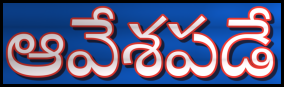
ఆవేశపడే